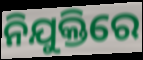
ନିଯୁକ୍ତିରେ